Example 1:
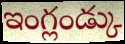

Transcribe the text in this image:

ఇంగ్లండ్కు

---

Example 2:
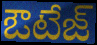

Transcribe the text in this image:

ఔటేజ్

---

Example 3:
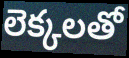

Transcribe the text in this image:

లెక్కలతో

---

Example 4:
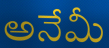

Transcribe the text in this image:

అనేమీ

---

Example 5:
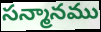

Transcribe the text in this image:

సన్మానము